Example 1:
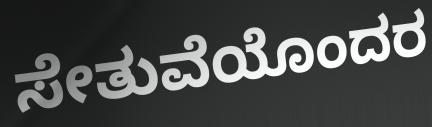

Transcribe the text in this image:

ಸೇತುವೆಯೊಂದರ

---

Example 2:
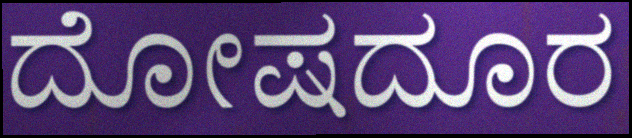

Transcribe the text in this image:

ದೋಷದೂರ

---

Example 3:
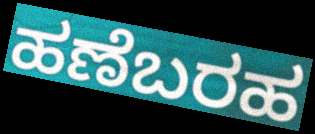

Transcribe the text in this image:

ಹಣೆಬರಹ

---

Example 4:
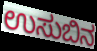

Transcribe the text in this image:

ಉಸುಬಿನ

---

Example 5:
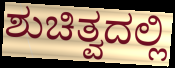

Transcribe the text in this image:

ಶುಚಿತ್ವದಲ್ಲಿ